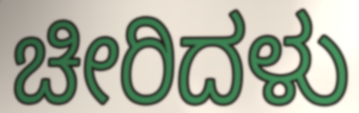
ಚೀರಿದಳು